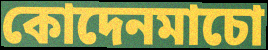
কোদেনমাচো